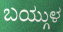
ಬಯ್ಗುಳ